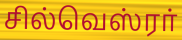
சில்வெஸ்ரர்